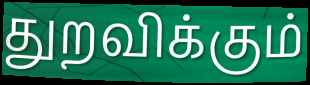
துறவிக்கும்